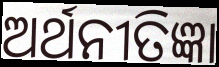
ଅର୍ଥନୀତିଜ୍ଞା